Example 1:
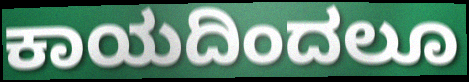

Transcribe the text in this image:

ಕಾಯದಿಂದಲೂ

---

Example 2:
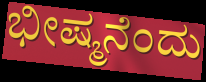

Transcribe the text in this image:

ಭೀಷ್ಮನೆಂದು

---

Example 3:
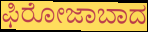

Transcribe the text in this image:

ಫಿರೋಜಾಬಾದ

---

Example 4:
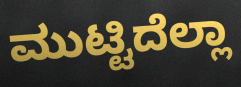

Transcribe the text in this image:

ಮುಟ್ಟಿದೆಲ್ಲಾ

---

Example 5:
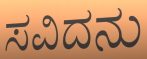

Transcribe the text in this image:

ಸವಿದನು